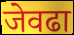
जेवढा